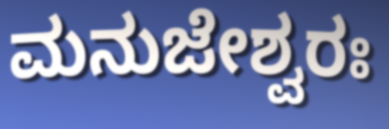
ಮನುಜೇಶ್ವರಃ